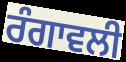
ਰੰਗਾਵਲੀ